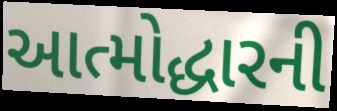
આત્મોદ્ધારની